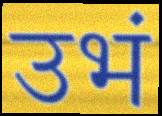
उभं